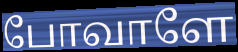
போவாளே